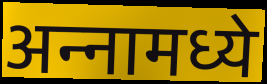
अन्नामध्ये